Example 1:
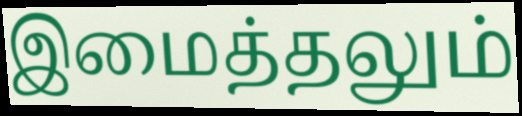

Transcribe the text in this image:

இமைத்தலும்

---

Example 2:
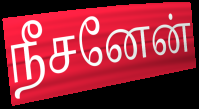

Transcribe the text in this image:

நீசனேன்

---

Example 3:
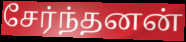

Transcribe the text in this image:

சேர்ந்தனன்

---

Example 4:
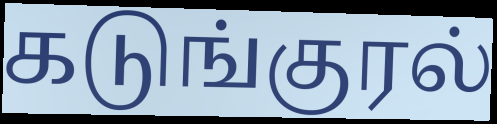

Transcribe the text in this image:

கடுங்குரல்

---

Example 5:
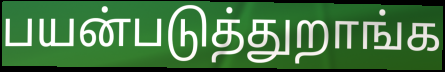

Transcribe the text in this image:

பயன்படுத்துறாங்க